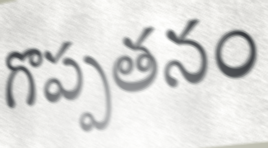
గొప్పతనం